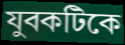
যুবকটিকে